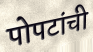
पोपटांची